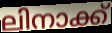
ലിനാക്ക്